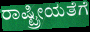
ರಾಷ್ಟ್ರೀಯತೆಗೆ